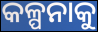
କଳ୍ପନାକୁ